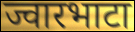
ज्वारभाटा